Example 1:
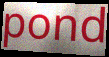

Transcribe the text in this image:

pond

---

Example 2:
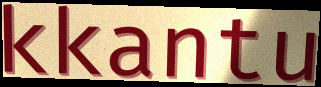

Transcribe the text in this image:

kkantu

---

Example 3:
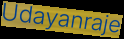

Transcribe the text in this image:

Udayanraje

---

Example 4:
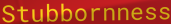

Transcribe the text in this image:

Stubbornness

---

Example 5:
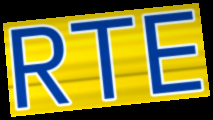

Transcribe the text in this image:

RTE